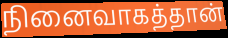
நினைவாகத்தான்